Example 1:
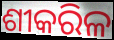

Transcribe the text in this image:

ଶୀକରିଳ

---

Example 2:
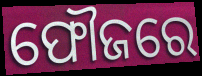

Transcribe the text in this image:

ଫୌଜରେ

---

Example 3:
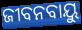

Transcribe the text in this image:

ଜୀବନବାୟୁ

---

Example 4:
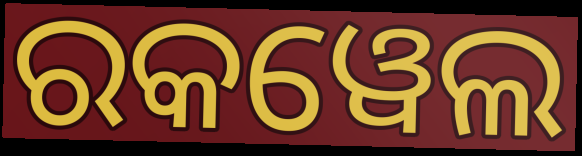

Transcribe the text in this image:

ରକୱେଲ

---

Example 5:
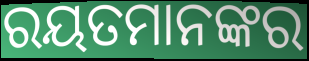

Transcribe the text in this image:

ରୟତମାନଙ୍କର